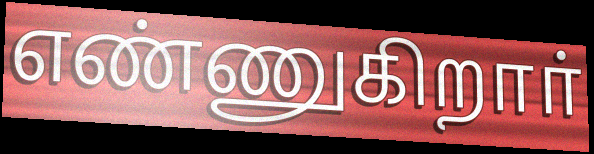
எண்ணுகிறார்